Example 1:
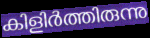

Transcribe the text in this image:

കിളിർത്തിരുന്നു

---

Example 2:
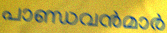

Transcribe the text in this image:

പാണ്ഡവൻമാർ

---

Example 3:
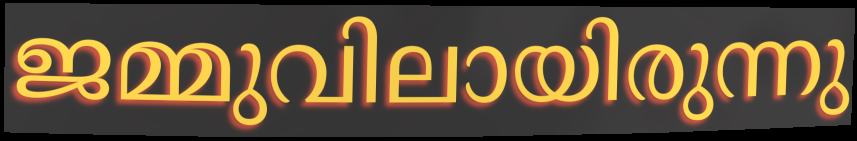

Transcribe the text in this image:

ജമ്മുവിലായിരുന്നു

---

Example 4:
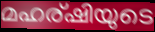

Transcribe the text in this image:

മഹര്ഷിയുടെ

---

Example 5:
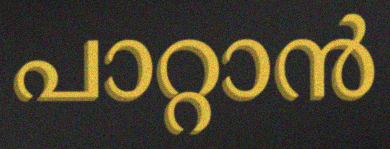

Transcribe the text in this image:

പാറ്റാൻ